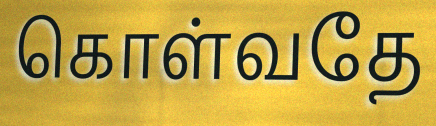
கொள்வதே